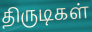
திருடிகள்